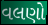
વલણો